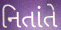
નિતાંતે